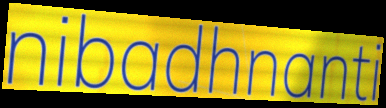
nibadhnanti